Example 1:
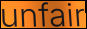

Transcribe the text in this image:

unfair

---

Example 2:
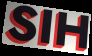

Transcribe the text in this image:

SIH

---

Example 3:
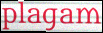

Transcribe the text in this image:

plagam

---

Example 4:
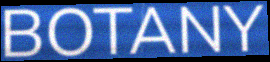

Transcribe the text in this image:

BOTANY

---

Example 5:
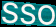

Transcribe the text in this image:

SSO